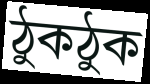
ঠুকঠুক